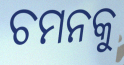
ଚମନକୁ